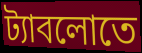
ট্যাবলোতে